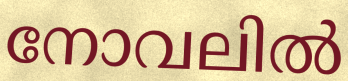
നോവലിൽ